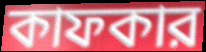
কাফকার